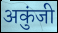
अकुंजी